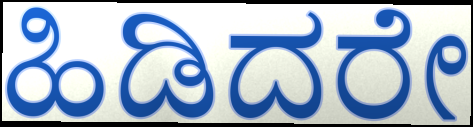
ಹಿಡಿದರೇ